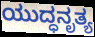
ಯುದ್ಧನೃತ್ಯ